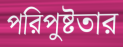
পরিপুষ্টতার